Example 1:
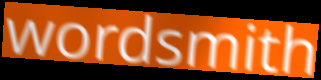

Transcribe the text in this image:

wordsmith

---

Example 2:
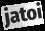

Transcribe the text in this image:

jatoi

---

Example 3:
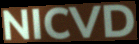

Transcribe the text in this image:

NICVD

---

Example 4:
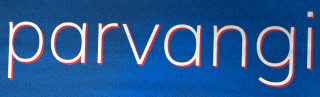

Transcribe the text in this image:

parvangi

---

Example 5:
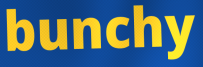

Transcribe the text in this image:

bunchy